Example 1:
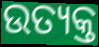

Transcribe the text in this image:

ଉତ୍ୟକ୍ତ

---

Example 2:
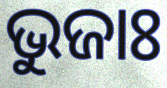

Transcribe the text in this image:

ଭୁଜାଃ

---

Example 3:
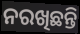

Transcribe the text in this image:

ନରଖିଛନ୍ତି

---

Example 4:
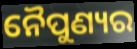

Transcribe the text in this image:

ନୈପୁଣ୍ୟର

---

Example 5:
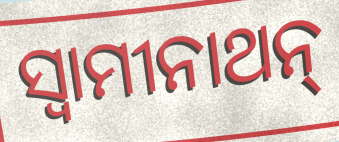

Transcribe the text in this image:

ସ୍ବାମୀନାଥନ୍